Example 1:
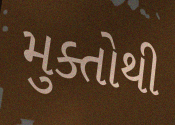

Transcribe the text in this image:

મુક્તોથી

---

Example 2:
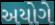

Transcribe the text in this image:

અયોગે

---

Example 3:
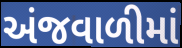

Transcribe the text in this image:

અંજવાળીમાં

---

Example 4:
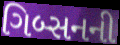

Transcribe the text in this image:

ગિબ્સનની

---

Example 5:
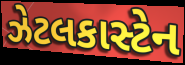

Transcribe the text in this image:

ઝેટલકાસ્ટેન